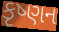
કૃષ્ણન